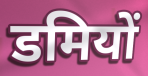
डमियों